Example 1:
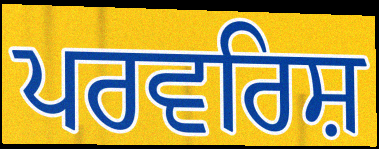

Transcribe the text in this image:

ਪਰਵਰਿਸ਼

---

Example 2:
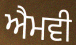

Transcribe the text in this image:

ਐਮਵੀ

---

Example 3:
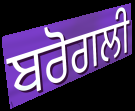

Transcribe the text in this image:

ਬਰੋਗਲੀ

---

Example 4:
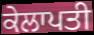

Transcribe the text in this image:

ਕੇਲਾਪਤੀ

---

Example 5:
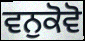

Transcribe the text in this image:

ਵਨੁਕੋਵੋ